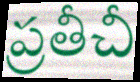
ప్రతీచీ